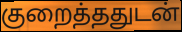
குறைத்ததுடன்